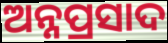
ଅନ୍ନପ୍ରସାଦ